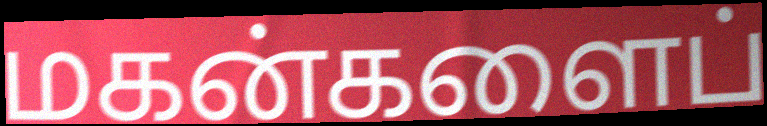
மகன்களைப்